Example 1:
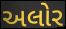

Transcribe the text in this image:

અલોર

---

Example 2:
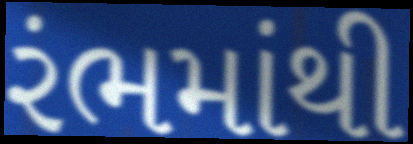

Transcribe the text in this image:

રંભમાંથી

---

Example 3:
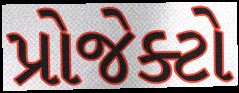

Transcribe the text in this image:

પ્રોજેક્ટો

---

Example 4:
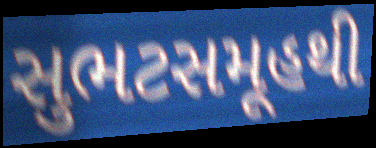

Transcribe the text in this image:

સુભટસમૂહથી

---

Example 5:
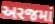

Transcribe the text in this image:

અરજમાં